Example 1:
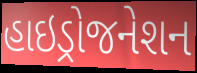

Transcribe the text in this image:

હાઇડ્રોજનેશન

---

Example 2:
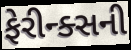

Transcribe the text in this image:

ફેરીન્ક્સની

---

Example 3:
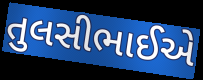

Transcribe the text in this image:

તુલસીભાઈએ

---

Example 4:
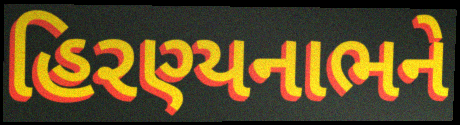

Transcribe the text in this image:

હિરણ્યનાભને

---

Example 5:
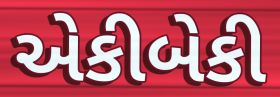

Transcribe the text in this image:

એકીબેકી